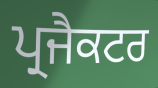
ਪ੍ਰਜੈਕਟਰ